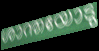
ശാന്തയോടു